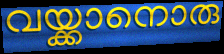
വയ്ക്കാനൊരു